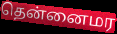
தென்னைமர